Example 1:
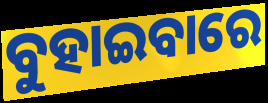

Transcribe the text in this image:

ବୁହାଇବାରେ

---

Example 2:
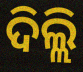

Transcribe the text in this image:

ଦିଲ୍ଲି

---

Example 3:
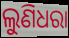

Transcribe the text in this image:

ଲୁଣିଧରା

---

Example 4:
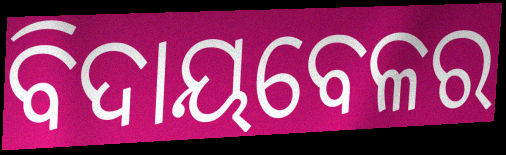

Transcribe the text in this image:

ବିଦାୟବେଳର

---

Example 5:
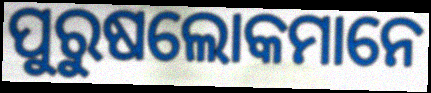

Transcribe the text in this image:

ପୁରୁଷଲୋକମାନେ